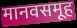
मानवसमूह